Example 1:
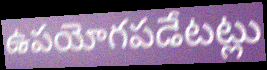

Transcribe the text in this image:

ఉపయోగపడేటట్లు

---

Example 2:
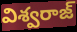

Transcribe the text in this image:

విశ్వరాజ్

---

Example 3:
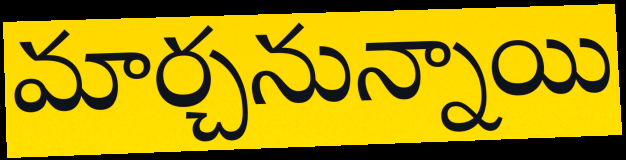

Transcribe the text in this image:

మార్చనున్నాయి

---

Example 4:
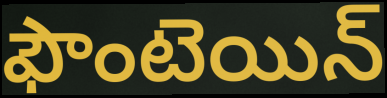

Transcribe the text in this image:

ఫౌంటెయిన్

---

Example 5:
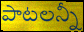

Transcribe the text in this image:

పాటలన్నీ